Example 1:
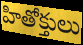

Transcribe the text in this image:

హితోక్తులు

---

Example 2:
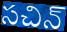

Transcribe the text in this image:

సచిన్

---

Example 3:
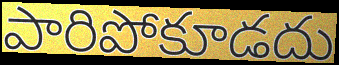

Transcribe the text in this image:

పారిపోకూడదు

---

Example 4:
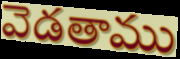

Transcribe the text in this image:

వెడతాము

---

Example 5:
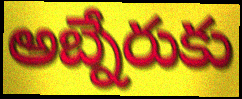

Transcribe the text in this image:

అబ్నేరుకు